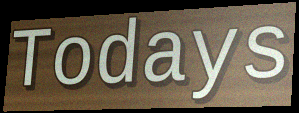
Todays